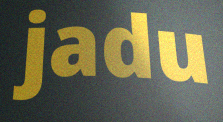
jadu